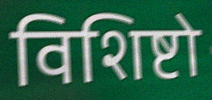
विशिष्टो